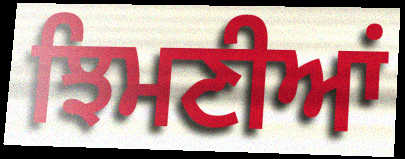
ਝਿਮਣੀਆਂ